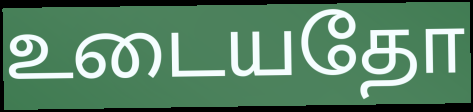
உடையதோ